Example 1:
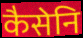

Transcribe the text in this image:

कैसेनि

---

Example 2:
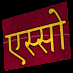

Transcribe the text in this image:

एस्सो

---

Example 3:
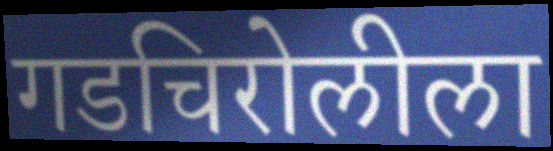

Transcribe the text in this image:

गडचिरोलीला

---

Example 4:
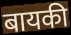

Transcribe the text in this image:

बायकी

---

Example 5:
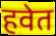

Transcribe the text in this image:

हवेत